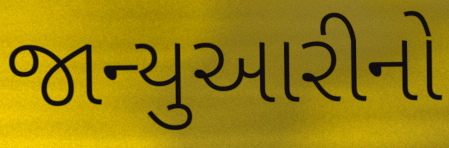
જાન્યુઆરીનો